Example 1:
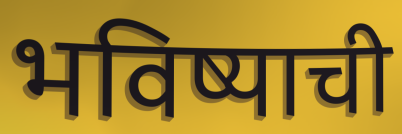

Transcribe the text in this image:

भविष्याची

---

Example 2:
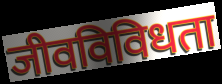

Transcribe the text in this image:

जीवविविधता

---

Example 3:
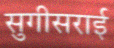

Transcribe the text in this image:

सुगीसराई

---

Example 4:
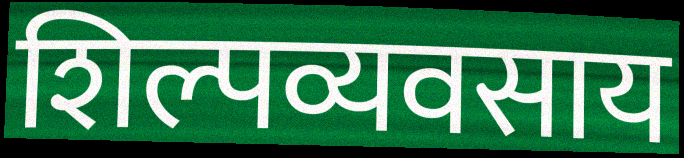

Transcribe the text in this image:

शिल्पव्यवसाय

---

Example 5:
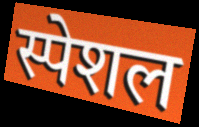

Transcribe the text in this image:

स्पेशल